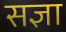
सज्ञा